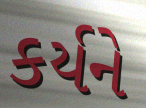
કર્યને